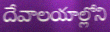
దేవాలయాల్లోని